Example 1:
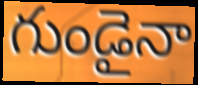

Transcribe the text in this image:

గుండైనా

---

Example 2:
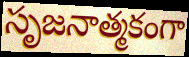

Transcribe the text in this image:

సృజనాత్మకంగా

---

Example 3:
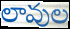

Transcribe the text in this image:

లావుల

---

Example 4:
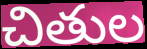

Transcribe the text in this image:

చితుల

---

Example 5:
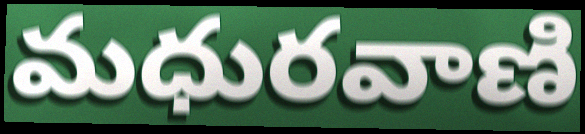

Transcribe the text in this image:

మధురవాణి